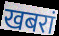
खबरां